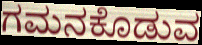
ಗಮನಕೊಡುವ